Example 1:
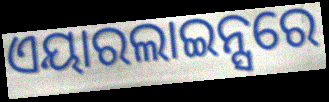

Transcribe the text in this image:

ଏୟାରଲାଇନ୍ସରେ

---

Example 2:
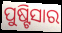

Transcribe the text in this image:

ପୁଷ୍ଟିସାର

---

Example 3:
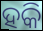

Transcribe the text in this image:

ହକି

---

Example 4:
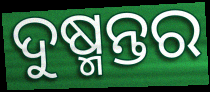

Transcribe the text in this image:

ଦୁଷ୍ମନ୍ତର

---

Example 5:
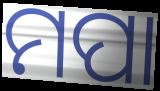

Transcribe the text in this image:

ମପା